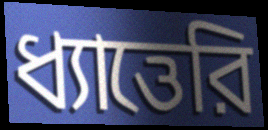
ধ্যাত্তেরি